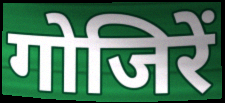
गोजिरें